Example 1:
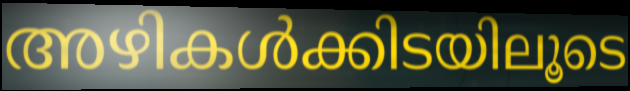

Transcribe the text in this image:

അഴികൾക്കിടയിലൂടെ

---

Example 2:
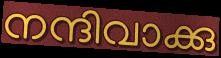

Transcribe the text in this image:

നന്ദിവാക്കു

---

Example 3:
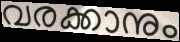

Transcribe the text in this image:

വരക്കാനും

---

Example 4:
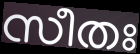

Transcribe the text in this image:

സീതഃ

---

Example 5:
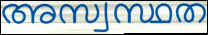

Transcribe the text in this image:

അസ്വസ്ഥത